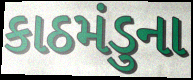
કાઠમંડુના